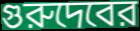
গুরুদেবের